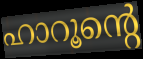
ഹാറൂന്റെ